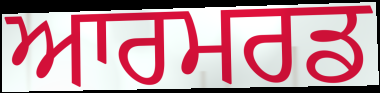
ਆਰਮਰਡ